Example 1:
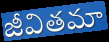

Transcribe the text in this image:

జీవితమా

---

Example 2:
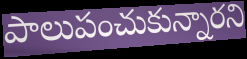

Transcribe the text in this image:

పాలుపంచుకున్నారని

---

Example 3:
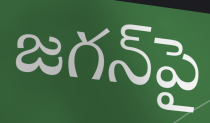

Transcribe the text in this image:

జగన్‌పై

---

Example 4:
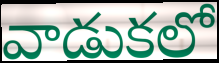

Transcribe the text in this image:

వాడుకలో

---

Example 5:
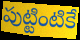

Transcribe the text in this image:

పుట్టింటికే